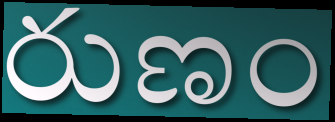
రుణం